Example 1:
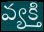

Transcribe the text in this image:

వ్యక్తి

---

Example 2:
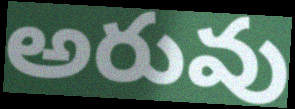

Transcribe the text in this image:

అరువు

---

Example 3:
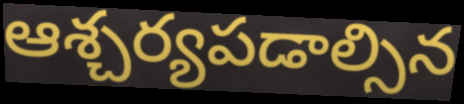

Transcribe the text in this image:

ఆశ్చర్యపడాల్సిన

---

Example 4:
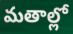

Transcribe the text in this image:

మతాల్లో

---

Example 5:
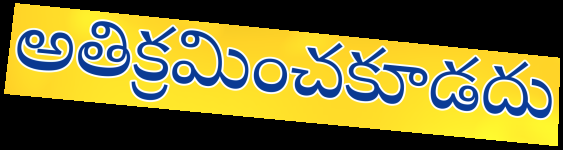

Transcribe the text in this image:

అతిక్రమించకూడదు